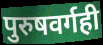
पुरुषवर्गही